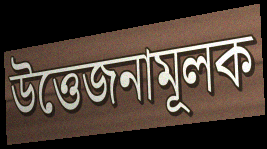
উত্তেজনামূলক